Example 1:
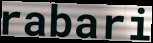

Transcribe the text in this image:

rabari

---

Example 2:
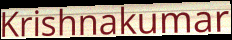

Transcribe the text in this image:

Krishnakumar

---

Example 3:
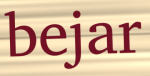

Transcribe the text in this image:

bejar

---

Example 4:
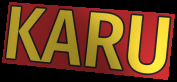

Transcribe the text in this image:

KARU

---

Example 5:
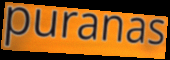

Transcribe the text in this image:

puranas